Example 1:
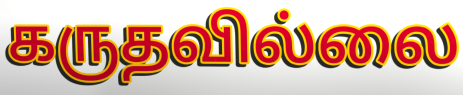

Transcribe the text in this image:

கருதவில்லை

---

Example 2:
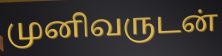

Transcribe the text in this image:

முனிவருடன்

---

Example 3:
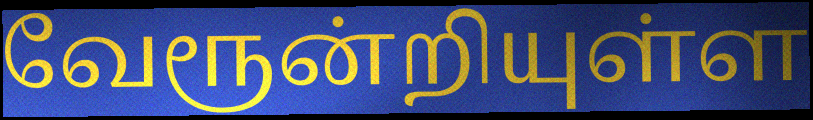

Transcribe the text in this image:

வேரூன்றியுள்ள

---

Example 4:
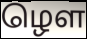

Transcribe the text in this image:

ழௌ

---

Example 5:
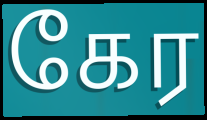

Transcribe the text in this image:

கேர